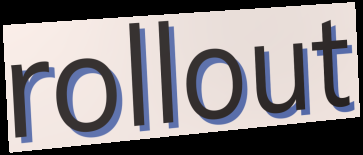
rollout